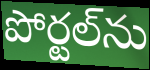
పోర్టల్‌ను